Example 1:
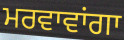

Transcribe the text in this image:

ਮਰਵਾਵਾਂਗਾ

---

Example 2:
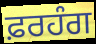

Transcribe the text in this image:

ਫ਼ਰਹੰਗ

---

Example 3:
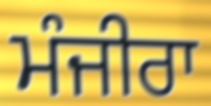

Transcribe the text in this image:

ਮੰਜੀਰਾ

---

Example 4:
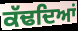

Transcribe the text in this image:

ਕੱਢਦਿਆਂ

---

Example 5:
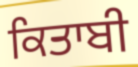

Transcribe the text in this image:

ਕਿਤਾਬੀ